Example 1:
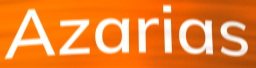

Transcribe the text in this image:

Azarias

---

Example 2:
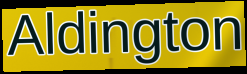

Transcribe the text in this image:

Aldington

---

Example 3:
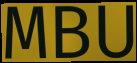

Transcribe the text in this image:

MBU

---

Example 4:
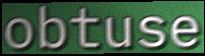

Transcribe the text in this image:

obtuse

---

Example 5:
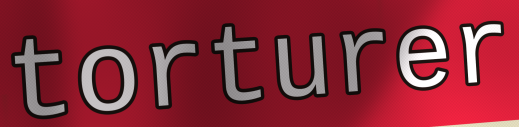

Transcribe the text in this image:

torturer